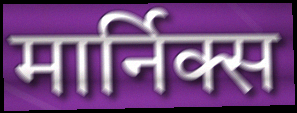
मार्निक्स